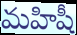
మహిషీ